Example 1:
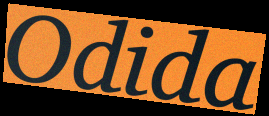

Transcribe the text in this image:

Odida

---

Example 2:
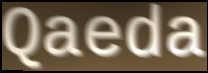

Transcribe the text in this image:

Qaeda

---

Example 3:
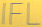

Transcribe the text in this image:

IFL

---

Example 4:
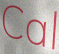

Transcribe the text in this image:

Cal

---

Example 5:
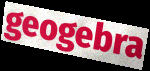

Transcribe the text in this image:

geogebra